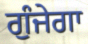
ਗੁੰਜੇਗਾ